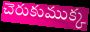
చెరుకుముక్క